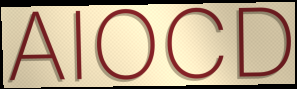
AIOCD